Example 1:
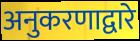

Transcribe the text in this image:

अनुकरणाद्वारे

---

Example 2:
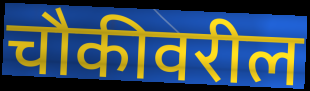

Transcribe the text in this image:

चौकीवरील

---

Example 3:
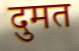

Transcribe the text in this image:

दुमत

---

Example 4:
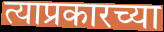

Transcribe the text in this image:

त्याप्रकारच्या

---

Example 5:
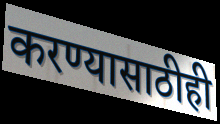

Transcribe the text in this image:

करण्यासाठीही